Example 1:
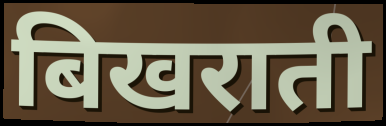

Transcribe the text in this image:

बिखराती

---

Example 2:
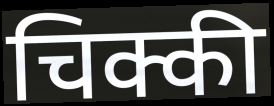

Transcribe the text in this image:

चिक्की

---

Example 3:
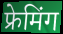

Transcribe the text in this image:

फ्रेमिंग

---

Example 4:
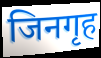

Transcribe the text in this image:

जिनगृह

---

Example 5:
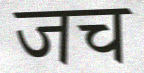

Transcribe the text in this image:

जच